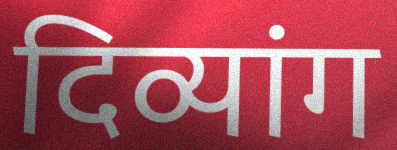
दिव्यांग